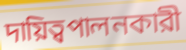
দায়িত্বপালনকারী